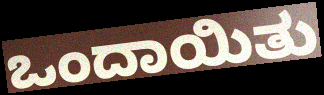
ಒಂದಾಯಿತು